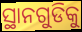
ସ୍ଥାନଗୁଡିକୁ